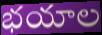
భయాల